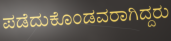
ಪಡೆದುಕೊಂಡವರಾಗಿದ್ದರು